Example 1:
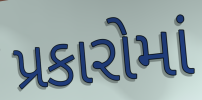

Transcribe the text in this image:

પ્રકારોમાં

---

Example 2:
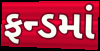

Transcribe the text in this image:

ફન્ડમાં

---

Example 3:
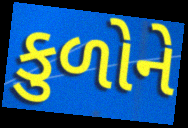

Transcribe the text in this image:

કુળોને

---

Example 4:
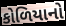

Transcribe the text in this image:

કોળિયાનો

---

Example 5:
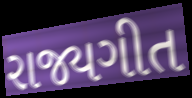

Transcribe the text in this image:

રાજ્યગીત